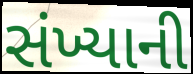
સંખ્યાની